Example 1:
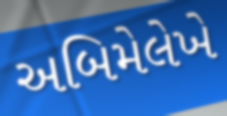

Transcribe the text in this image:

અબિમેલેખે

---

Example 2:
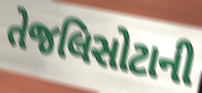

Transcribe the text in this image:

તેજલિસોટાની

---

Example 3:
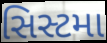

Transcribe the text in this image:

સિસ્ટમા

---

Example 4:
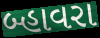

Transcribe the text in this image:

બ્હાવરા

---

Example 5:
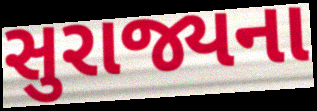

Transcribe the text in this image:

સુરાજ્યના